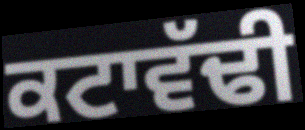
ਕਟਾਵੱਢੀ